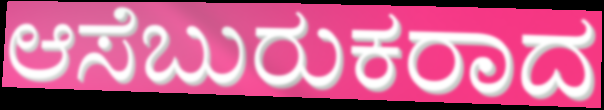
ಆಸೆಬುರುಕರಾದ